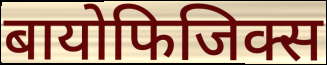
बायोफिजिक्स